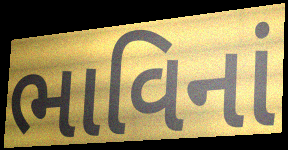
ભાવિનાં